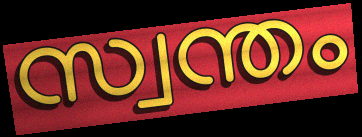
സ്വന്തം